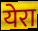
येरा